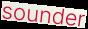
sounder